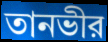
তানভীর